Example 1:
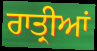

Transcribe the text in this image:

ਰਾਤ੍ਰੀਆਂ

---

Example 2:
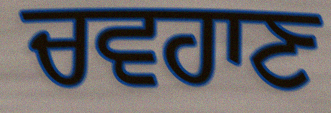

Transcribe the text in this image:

ਚਵਹਾਣ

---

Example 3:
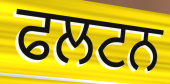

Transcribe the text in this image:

ਫਲਟਨ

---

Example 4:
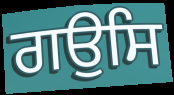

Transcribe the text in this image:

ਗਉਸਿ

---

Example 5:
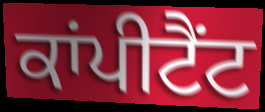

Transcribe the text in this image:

ਕਾਂਪੀਟੈਂਟ